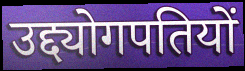
उद्द्योगपतियों